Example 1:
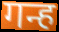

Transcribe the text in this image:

गन्ह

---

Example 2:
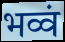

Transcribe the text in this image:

भव्वं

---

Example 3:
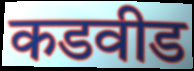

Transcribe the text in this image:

कडवीड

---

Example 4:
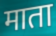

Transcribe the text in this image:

माता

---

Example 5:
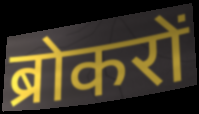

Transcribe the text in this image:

ब्रोकरों